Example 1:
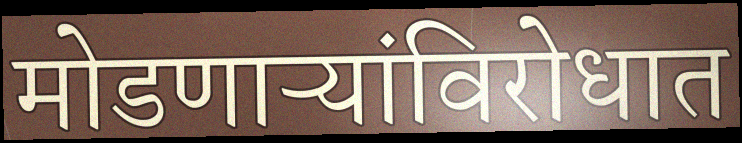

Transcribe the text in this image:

मोडणाऱ्यांविरोधात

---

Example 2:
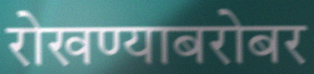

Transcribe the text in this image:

रोखण्याबरोबर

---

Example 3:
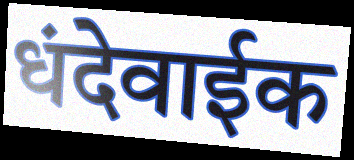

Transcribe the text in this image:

धंदेवाईक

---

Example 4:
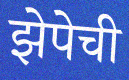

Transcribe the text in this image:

झेपेची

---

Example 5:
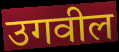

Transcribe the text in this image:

उगवील